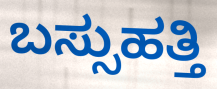
ಬಸ್ಸುಹತ್ತಿ